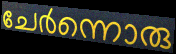
ചേർന്നൊരു